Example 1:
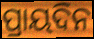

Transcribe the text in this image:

ପ୍ରାୟଦିନ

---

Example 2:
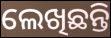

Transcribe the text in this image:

ଲେଖିଛନ୍ତି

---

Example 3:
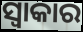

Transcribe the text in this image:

ସ୍ୱାକାର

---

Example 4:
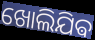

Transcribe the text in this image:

ଖୋଲିଯିଵ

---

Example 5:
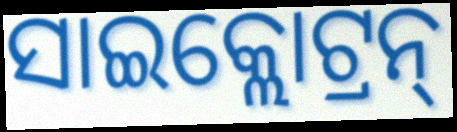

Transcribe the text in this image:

ସାଇକ୍ଲୋଟ୍ରନ୍